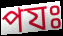
পযঃ